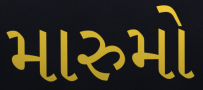
મારુમો